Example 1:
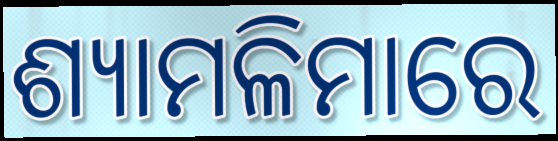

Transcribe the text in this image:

ଶ୍ୟାମଳିମାରେ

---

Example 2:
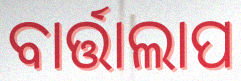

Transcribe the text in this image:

ବାର୍ତ୍ତାଲାପ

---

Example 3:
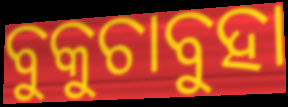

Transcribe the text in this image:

ବୁକୁଚାବୁହା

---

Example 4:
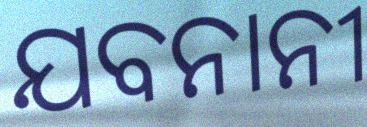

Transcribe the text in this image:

ଯବନାନୀ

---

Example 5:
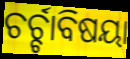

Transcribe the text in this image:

ଚର୍ଚ୍ଚାବିଷୟା